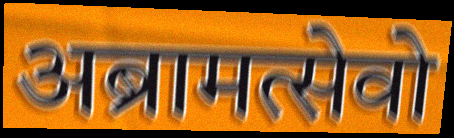
अब्रामत्सेवो